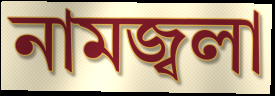
নামজ্বলা